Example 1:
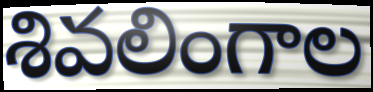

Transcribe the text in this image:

శివలింగాల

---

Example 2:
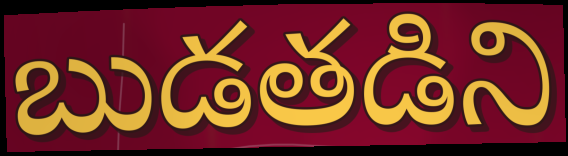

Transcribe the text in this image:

బుడతడిని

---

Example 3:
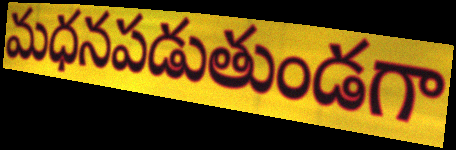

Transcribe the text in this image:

మధనపడుతుండగా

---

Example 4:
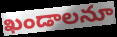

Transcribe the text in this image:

ఖండాలనూ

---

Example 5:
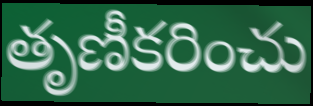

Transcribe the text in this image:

తృణీకరించు